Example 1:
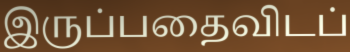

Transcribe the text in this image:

இருப்பதைவிடப்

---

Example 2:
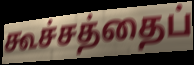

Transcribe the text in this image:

கூச்சத்தைப்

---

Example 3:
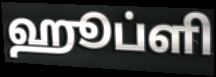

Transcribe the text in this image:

ஹூப்ளி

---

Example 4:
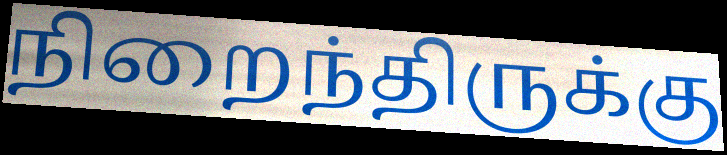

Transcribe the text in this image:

நிறைந்திருக்கு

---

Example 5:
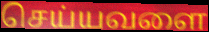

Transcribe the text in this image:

செய்யவளை